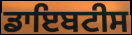
ਡਾਇਬਟੀਸ